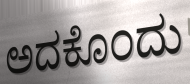
ಅದಕೊಂದು